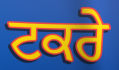
ਟਕਰੇ